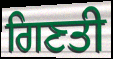
ਗਿਣਤੀ